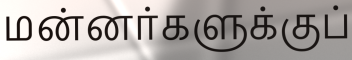
மன்னர்களுக்குப்